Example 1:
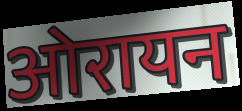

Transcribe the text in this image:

ओरायन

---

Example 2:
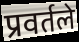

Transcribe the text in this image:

प्रवर्तले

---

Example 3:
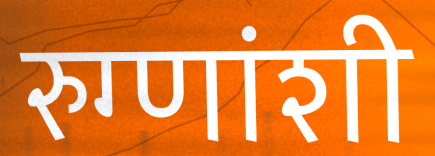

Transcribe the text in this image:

रुग्णांशी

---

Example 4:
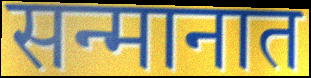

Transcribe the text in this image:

सन्मानात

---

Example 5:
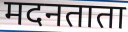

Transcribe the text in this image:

मदनताता